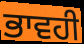
ਭਾਵਹੀ